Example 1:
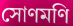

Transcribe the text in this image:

সোণমণি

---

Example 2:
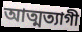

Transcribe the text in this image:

আত্মত্যাগী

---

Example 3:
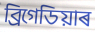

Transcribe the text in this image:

ব্ৰিগেডিয়াৰ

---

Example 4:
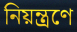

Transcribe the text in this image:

নিয়ন্ত্ৰণে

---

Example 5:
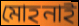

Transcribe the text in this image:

মোহনাই